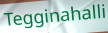
Tegginahalli